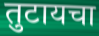
तुटायचा